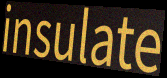
insulate